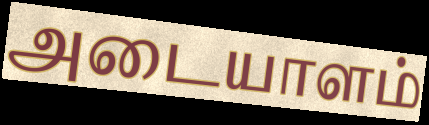
அடையாளம்